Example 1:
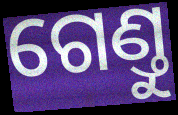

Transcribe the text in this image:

ଗେଣ୍ତୁ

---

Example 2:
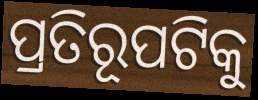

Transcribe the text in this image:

ପ୍ରତିରୂପଟିକୁ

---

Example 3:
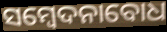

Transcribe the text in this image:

ସମ୍ବେଦନାବୋଧ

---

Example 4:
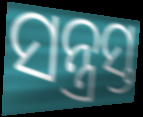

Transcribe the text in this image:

ସନ୍ତ୍ରସ୍ତ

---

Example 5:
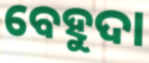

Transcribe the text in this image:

ବେହୁଦା